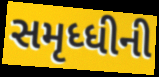
સમૃધ્ધીની